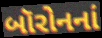
બૉરોનનાં